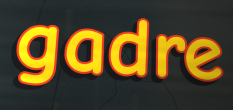
gadre